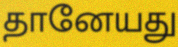
தானேயது